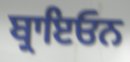
ਬ੍ਰਾਇਓਨ